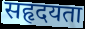
सहृदयता